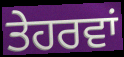
ਤੇਹਰਵਾਂ